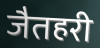
जैतहरी